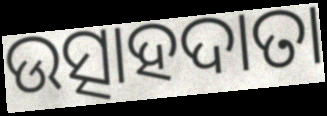
ଉତ୍ସାହଦାତା